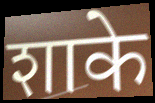
शाके